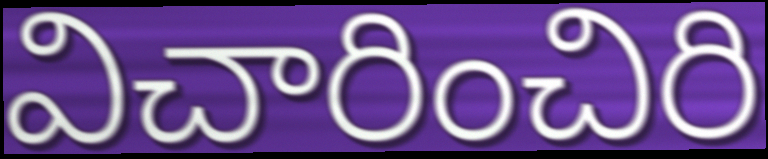
విచారించిరి